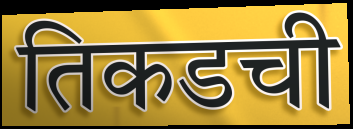
तिकडची